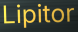
Lipitor